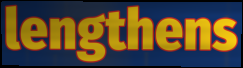
lengthens